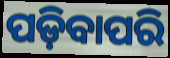
ପଡ଼ିବାପରି